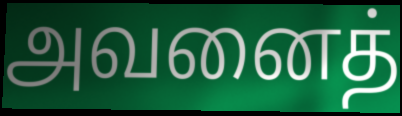
அவனைத்